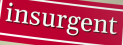
insurgent